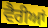
ਵੈਰੀਆਂ